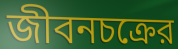
জীবনচক্রের